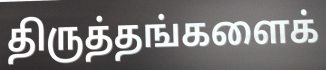
திருத்தங்களைக்